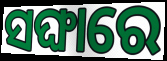
ସଙ୍ଘାରେ